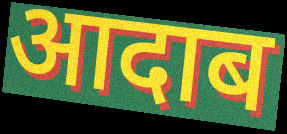
आदाब